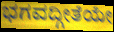
ಭಗವದ್ಗೀತೆಯೇ